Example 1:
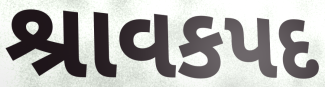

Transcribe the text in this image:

શ્રાવકપદ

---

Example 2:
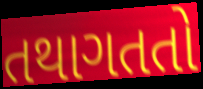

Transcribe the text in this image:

તથાગતતો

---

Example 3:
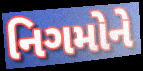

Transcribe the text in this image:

નિગમોને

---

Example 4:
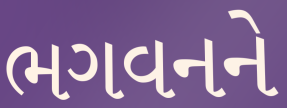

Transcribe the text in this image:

ભગવનને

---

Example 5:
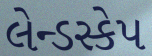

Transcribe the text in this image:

લેન્ડસ્કેપ